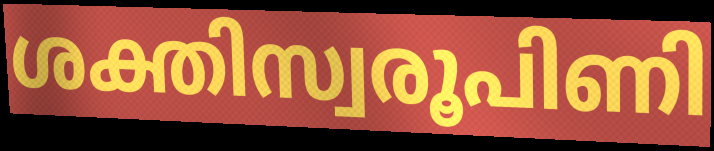
ശക്തിസ്വരൂപിണി